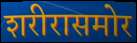
शरीरासमोर